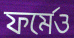
ফর্মেও